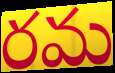
రమ